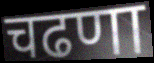
चढणा